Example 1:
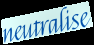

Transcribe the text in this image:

neutralise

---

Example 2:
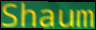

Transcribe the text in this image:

Shaum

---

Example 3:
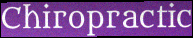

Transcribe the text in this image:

Chiropractic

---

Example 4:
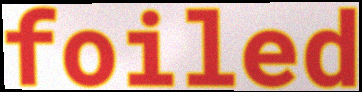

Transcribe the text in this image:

foiled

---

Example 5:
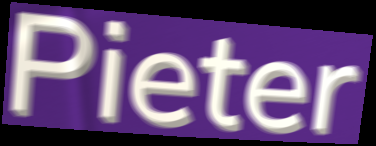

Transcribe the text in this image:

Pieter